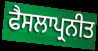
ਫੈਸਲਾਪ੍ਰਨੀਤ